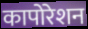
कापोरेशन